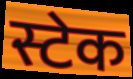
स्टेक